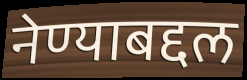
नेण्याबद्दल